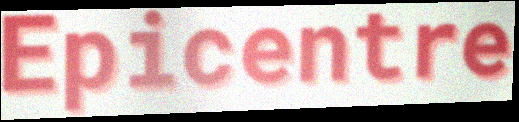
Epicentre